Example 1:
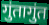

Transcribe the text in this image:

गुंतागुंत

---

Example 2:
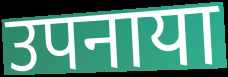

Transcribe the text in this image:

उपनाया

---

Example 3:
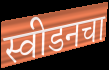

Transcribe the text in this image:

स्वीडनचा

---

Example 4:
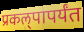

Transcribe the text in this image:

प्रकल्पापर्यंत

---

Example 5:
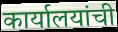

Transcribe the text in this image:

कार्यालयांची